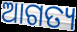
ଆଗତ୍ୟ